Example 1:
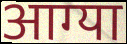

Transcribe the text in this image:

आग्या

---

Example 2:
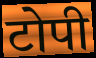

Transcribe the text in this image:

टोपी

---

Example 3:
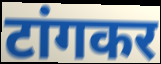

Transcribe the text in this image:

टांगकर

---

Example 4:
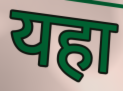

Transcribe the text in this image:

यहा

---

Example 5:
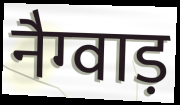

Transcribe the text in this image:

नैग्वाड़